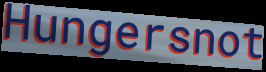
Hungersnot